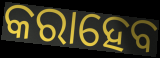
କରାହେବ